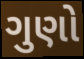
ગુણો